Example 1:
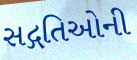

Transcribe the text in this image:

સદ્ગતિઓની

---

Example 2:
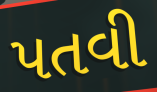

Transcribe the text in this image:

પતવી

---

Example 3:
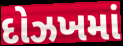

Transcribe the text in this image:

દોઝખમાં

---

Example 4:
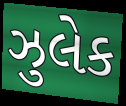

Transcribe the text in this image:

ઝુલેક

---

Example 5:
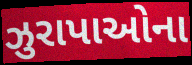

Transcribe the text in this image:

ઝુરાપાઓના